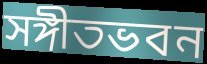
সঙ্গীতভবন